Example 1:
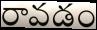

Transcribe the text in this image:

రావడం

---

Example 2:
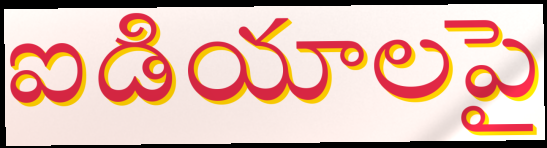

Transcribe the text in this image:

ఐడియాలపై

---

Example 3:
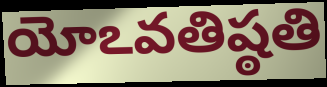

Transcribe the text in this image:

యోఽవతిష్ఠతి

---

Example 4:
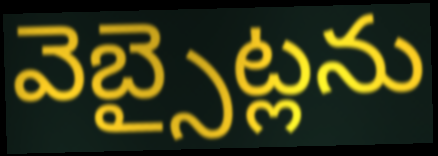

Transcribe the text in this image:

వెబ్సైట్లను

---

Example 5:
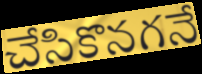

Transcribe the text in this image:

చేసికొనగనే